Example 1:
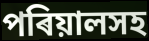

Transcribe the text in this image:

পৰিয়ালসহ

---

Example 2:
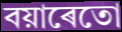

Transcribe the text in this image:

বয়াৰেতো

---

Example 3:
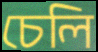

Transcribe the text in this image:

চেলি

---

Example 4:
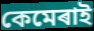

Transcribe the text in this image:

কেমেৰাই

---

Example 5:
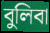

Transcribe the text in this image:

বুলিবা